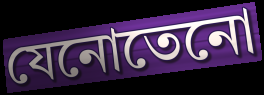
যেনোতেনো